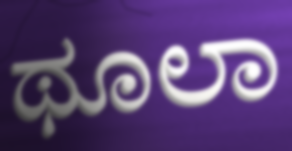
ಥೂಲಾ